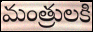
మంత్రులకి